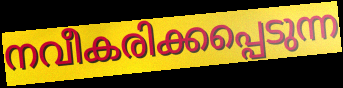
നവീകരിക്കപ്പെടുന്ന